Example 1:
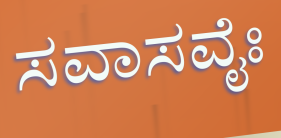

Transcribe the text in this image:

ಸವಾಸವೈಃ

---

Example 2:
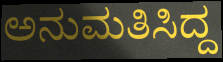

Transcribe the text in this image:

ಅನುಮತಿಸಿದ್ದ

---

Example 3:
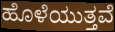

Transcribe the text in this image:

ಹೊಳೆಯುತ್ತವೆ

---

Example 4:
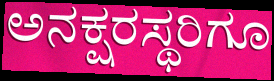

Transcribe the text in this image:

ಅನಕ್ಷರಸ್ಥರಿಗೂ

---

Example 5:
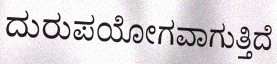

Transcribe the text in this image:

ದುರುಪಯೋಗವಾಗುತ್ತಿದೆ